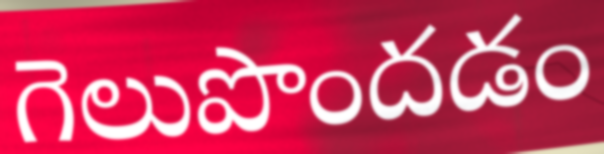
గెలుపొందడం